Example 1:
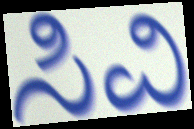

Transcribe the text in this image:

ಸಿವಿ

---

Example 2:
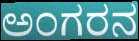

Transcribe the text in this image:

ಅಂಗರನ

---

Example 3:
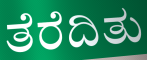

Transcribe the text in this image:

ತೆರೆದಿತು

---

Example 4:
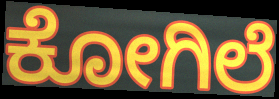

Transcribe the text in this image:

ಕೋಗಿಲೆ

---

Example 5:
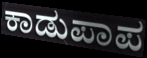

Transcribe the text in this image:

ಕಾಡುಪಾಪ